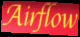
Airflow